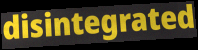
disintegrated